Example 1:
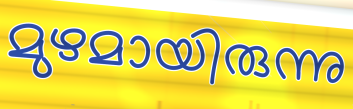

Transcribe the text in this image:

മുഴമായിരുന്നു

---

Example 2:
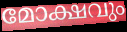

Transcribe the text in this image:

മോക്ഷവും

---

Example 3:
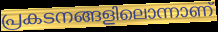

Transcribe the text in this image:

പ്രകടനങ്ങളിലൊന്നാണ്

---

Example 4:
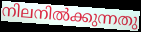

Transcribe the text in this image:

നിലനിൽക്കുന്നതു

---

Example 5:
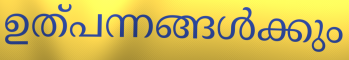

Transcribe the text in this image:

ഉത്പന്നങ്ങൾക്കും